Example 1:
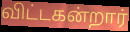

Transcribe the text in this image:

விட்டகன்றார்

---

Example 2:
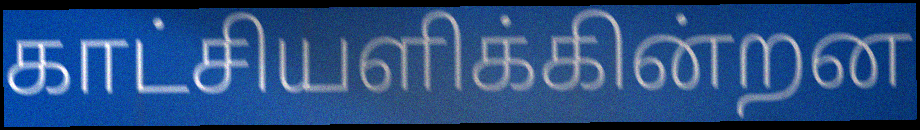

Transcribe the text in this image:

காட்சியளிக்கின்றன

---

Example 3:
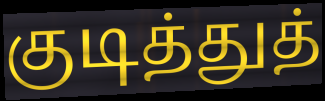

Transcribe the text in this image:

குடித்துத்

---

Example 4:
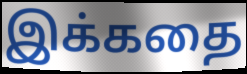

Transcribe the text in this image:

இக்கதை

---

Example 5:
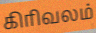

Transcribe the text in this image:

கிரிவலம்